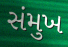
સંમુખ